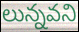
లున్నవని